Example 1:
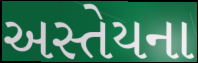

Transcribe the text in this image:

અસ્તેયના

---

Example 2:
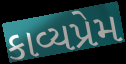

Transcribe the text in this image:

કાવ્યપ્રેમ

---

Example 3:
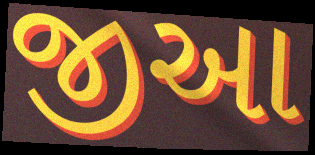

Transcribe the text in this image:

જીઆ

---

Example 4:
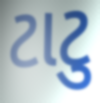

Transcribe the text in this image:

ટાટુ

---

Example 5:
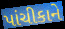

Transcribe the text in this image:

પાંચીકાને